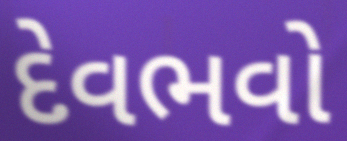
દેવભવો